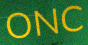
ONC